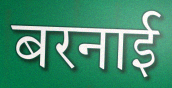
बरनाई